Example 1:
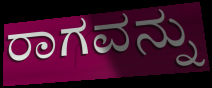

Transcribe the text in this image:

ರಾಗವನ್ನು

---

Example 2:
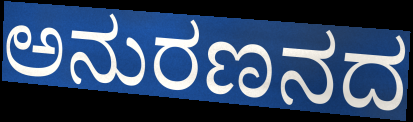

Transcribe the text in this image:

ಅನುರಣನದ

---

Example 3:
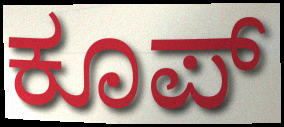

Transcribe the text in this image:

ಕೂಪ್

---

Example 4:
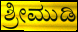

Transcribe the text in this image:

ಶ್ರೀಮುಡಿ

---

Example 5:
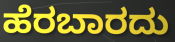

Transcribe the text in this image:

ಹೆರಬಾರದು